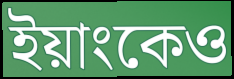
ইয়াংকেও